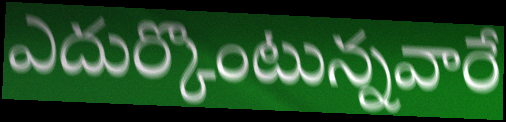
ఎదుర్కొంటున్నవారే